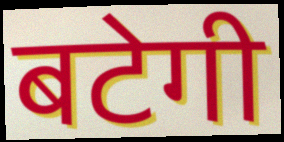
बटेगी